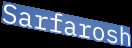
Sarfarosh